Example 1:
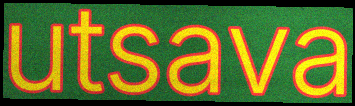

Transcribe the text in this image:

utsava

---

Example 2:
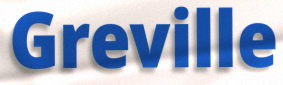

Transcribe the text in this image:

Greville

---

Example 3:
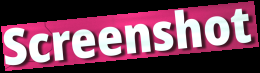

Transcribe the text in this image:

Screenshot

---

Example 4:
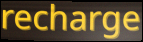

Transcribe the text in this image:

recharge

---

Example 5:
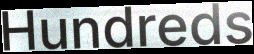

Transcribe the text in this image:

Hundreds